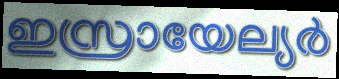
ഇസ്രായേല്യർ